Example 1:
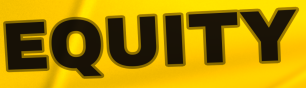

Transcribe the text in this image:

EQUITY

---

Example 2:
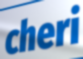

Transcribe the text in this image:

cheri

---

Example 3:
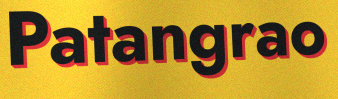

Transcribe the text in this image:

Patangrao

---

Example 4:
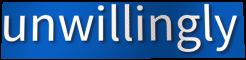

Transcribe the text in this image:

unwillingly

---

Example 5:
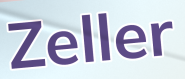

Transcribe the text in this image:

Zeller